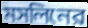
মসলিনের